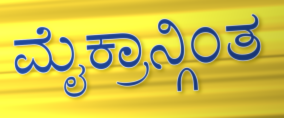
ಮೈಕ್ರಾನ್ಗಿಂತ